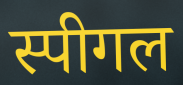
स्पीगल